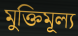
মুক্তিমূল্য